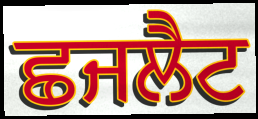
ਛਜਲੈਟ